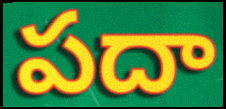
పదా